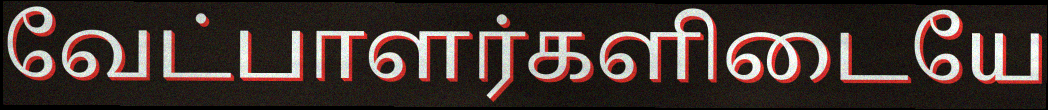
வேட்பாளர்களிடையே